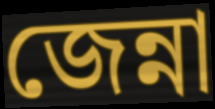
জেন্না